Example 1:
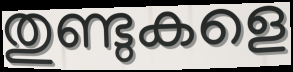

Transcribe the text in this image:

തുണ്ടുകളെ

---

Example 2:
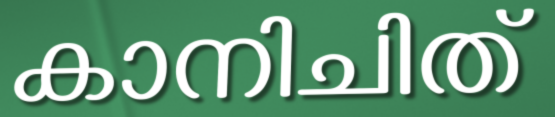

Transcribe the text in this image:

കാനിചിത്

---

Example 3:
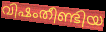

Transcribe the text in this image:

വിഷംതീണ്ടിയ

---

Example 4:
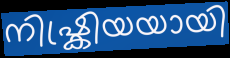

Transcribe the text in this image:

നിഷ്ക്രിയയായി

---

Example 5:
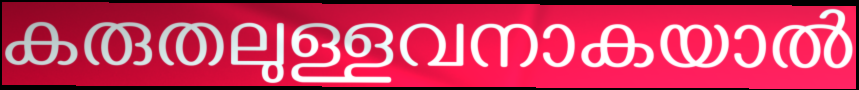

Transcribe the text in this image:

കരുതലുള്ളവനാകയാൽ